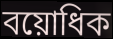
বয়োধিক